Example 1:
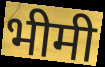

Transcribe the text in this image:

भीमी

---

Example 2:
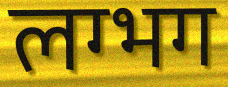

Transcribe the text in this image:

लग्भग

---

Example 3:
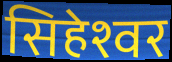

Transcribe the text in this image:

सिहेश्वर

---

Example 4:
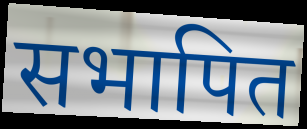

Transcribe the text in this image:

सभापित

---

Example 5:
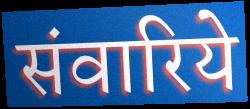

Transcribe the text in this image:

संवारिये